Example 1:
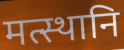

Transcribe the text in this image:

मत्स्थानि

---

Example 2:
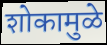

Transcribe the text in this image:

शोकामुळे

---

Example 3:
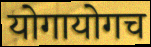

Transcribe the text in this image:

योगायोगच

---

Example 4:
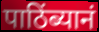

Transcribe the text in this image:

पाठिंब्यानं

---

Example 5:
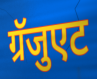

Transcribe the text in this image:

ग्रॅजुएट